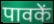
पावकें